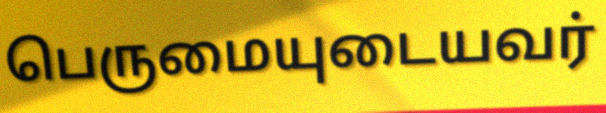
பெருமையுடையவர்